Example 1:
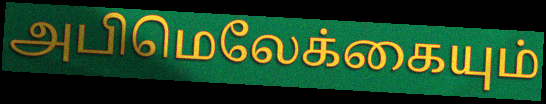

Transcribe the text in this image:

அபிமெலேக்கையும்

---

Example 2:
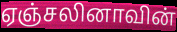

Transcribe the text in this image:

ஏஞ்சலினாவின்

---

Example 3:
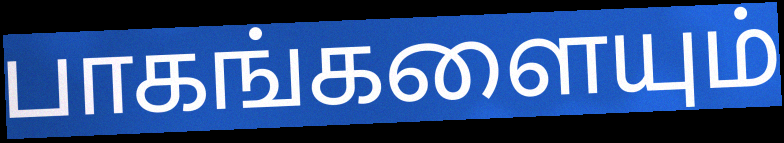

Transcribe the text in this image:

பாகங்களையும்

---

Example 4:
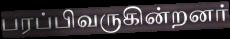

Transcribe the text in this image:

பரப்பிவருகின்றனர்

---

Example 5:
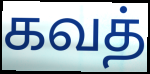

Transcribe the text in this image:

கவத்